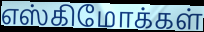
எஸ்கிமோக்கள்